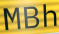
MBh